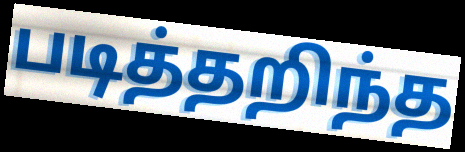
படித்தறிந்த